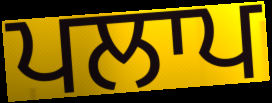
ਪਲਾਪ